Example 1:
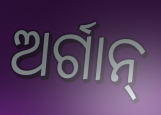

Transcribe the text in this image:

ଅର୍ଗାନ୍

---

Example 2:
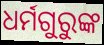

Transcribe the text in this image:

ଧର୍ମଗୁରୁଙ୍କ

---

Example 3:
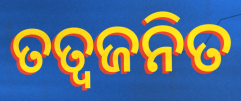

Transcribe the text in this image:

ତତ୍ଵଜନିତ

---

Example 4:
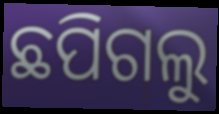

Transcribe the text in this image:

ଛପିଗଲୁ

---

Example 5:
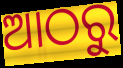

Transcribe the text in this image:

ଆଠରୁ